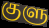
குளு